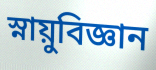
স্নায়ুবিজ্ঞান